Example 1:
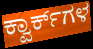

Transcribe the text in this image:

ಕ್ವಾರ್ಕ್‌ಗಳ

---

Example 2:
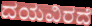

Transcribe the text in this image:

ದಯವಿರದೆ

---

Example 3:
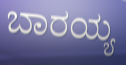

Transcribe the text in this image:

ಬಾರಯ್ಯ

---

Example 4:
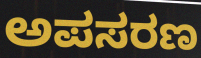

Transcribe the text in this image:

ಅಪಸರಣ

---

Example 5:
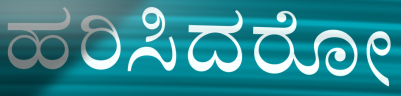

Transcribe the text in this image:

ಹರಿಸಿದರೋ